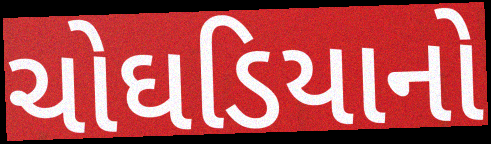
ચોઘડિયાનો